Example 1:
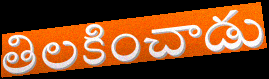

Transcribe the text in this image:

తిలకించాడు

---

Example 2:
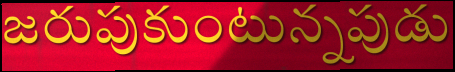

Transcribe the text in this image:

జరుపుకుంటున్నపుడు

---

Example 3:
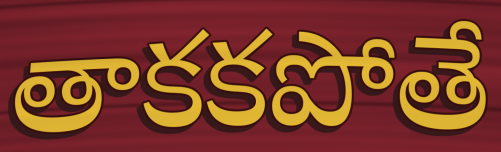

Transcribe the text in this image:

తాకకపోతే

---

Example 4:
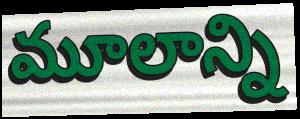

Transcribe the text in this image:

మూలాన్ని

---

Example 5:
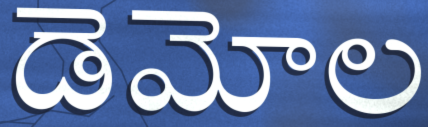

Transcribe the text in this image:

డెమోల